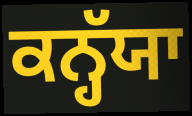
ਕਨ੍ਹੱਯਾ